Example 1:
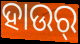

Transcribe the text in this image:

ହାଉର୍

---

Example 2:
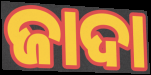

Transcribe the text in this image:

ଜାଦା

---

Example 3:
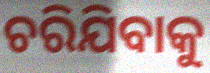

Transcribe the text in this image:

ଚରିଯିବାକୁ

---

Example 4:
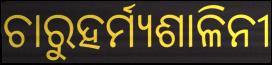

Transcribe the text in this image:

ଚାରୁହର୍ମ୍ୟଶାଳିନୀ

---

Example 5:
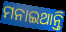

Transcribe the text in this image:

ମନାଇଥାନ୍ତି